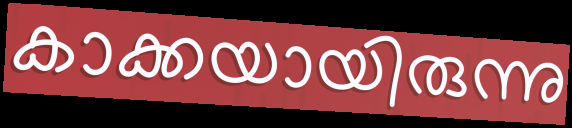
കാക്കയായിരുന്നു